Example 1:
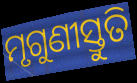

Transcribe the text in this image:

ମୃଗୁଣୀସ୍ତୁତି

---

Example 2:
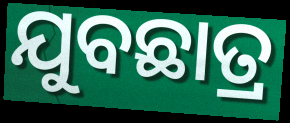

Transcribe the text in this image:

ଯୁବଛାତ୍ର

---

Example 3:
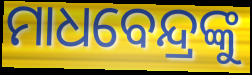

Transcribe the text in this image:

ମାଧବେନ୍ଦ୍ରଙ୍କୁ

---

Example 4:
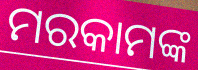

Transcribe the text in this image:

ମରକାମଙ୍କ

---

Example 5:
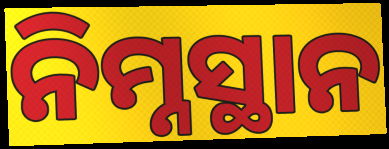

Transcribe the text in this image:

ନିମ୍ନସ୍ଥାନ